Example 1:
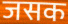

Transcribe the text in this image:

जसक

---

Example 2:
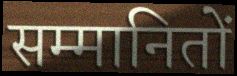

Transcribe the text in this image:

सम्मानितों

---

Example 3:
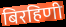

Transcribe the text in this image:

बिरहिणी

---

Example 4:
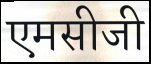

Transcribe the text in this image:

एमसीजी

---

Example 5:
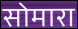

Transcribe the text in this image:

सोमारा